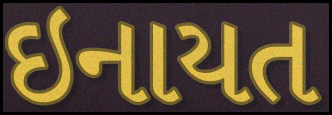
ઇનાયત